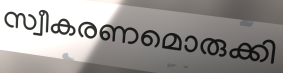
സ്വീകരണമൊരുക്കി